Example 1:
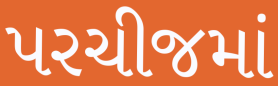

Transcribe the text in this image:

પરચીજમાં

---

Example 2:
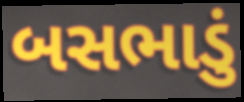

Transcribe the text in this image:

બસભાડું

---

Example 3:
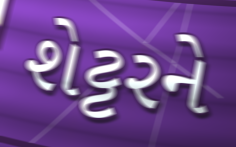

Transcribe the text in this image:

શેટ્ટરને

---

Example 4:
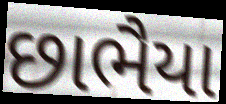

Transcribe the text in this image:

છાભૈયા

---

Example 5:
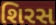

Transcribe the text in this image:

શિરસ